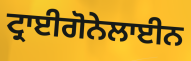
ਟ੍ਰਾਈਗੋਨੇਲਾਈਨ